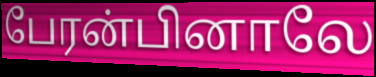
பேரன்பினாலே